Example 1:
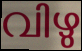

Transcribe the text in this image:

വിഴു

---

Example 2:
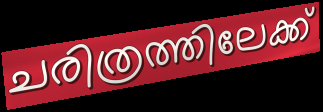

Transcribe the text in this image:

ചരിത്രത്തിലേക്ക്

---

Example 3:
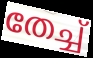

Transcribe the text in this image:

തേച്ച്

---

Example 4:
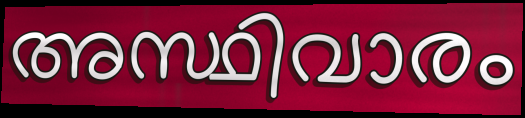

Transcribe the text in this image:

അസ്ഥിവാരം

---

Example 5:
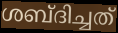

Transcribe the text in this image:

ശബ്ദിച്ചത്